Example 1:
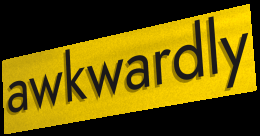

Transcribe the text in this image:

awkwardly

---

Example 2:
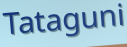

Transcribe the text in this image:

Tataguni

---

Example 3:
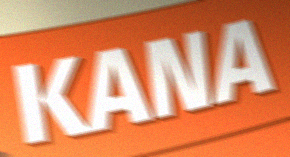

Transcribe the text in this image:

KANA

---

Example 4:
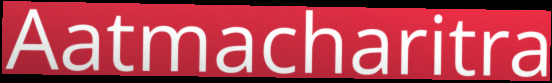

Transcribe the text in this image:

Aatmacharitra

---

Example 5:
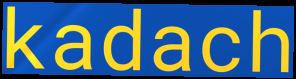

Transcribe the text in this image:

kadach